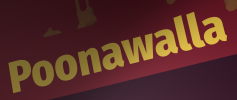
Poonawalla